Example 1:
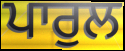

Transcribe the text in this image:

ਪਾਰੁਲ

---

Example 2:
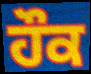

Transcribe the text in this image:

ਹੌਕ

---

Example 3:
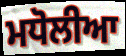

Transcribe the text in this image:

ਮਧੋਲੀਆ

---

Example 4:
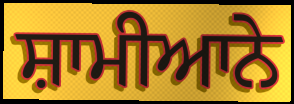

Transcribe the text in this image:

ਸ਼ਾਮੀਆਨੇ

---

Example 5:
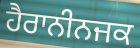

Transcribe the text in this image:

ਹੈਰਾਨੀਨਜਕ